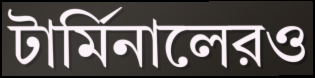
টার্মিনালেরও